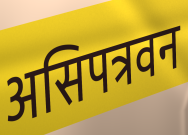
असिपत्रवन